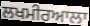
ਲਖਮੀਰਆਲਾ